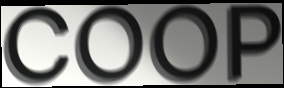
COOP